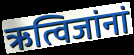
ऋत्विजांनां